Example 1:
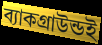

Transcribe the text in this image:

ব্যাকগ্রাউন্ডই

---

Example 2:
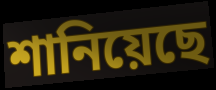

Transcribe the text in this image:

শানিয়েছে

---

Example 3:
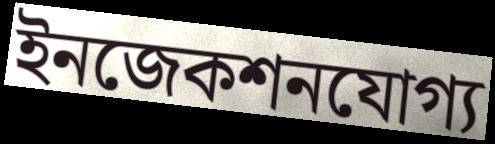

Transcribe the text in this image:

ইনজেকশনযোগ্য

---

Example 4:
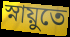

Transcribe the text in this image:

স্নায়ুতে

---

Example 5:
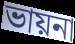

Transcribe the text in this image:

ভায়না